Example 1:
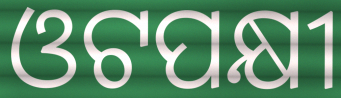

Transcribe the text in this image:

ଓଟପକ୍ଷୀ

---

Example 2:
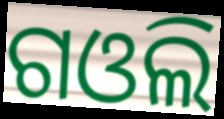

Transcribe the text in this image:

ଗଓଲି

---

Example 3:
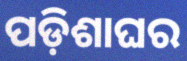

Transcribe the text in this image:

ପଡ଼ିଶାଘର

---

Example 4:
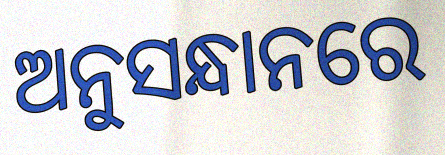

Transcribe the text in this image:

ଅନୁସନ୍ଧାନରେ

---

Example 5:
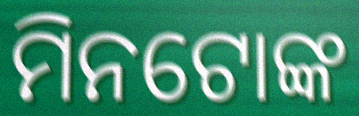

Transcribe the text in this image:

ମିନଟୋଙ୍କ